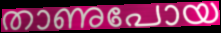
താണുപോയ